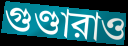
গুণ্ডারাও